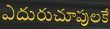
ఎదురుచూపులకే